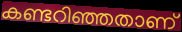
കണ്ടറിഞ്ഞതാണ്